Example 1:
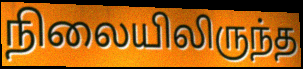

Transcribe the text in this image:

நிலையிலிருந்த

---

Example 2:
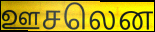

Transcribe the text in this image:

ஊசலென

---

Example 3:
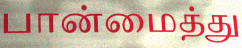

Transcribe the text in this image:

பான்மைத்து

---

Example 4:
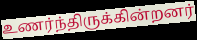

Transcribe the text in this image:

உணர்ந்திருக்கின்றனர்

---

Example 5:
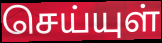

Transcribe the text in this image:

செய்யுள்